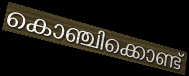
കൊഞ്ചിക്കൊണ്ട്